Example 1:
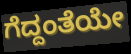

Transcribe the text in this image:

ಗೆದ್ದಂತೆಯೇ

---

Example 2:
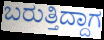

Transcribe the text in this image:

ಬರುತ್ತಿದ್ದಾಗ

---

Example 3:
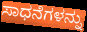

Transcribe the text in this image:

ಸಾಧನೆಗಳನ್ನು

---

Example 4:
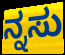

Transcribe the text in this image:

ನ್ನಸು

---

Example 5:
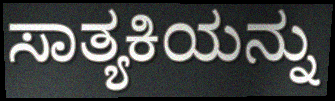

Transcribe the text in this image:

ಸಾತ್ಯಕಿಯನ್ನು